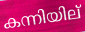
കന്നിയില്